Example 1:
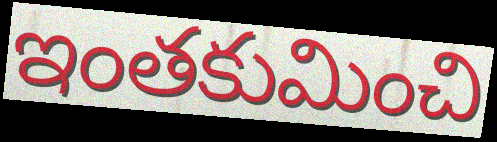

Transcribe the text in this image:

ఇంతకుమించి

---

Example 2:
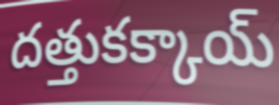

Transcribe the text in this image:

దత్తుకక్కాయ్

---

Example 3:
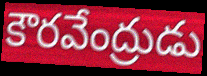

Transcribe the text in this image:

కౌరవేంద్రుడు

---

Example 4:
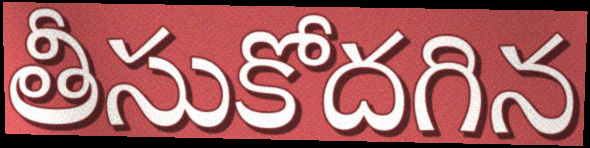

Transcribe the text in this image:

తీసుకోదగిన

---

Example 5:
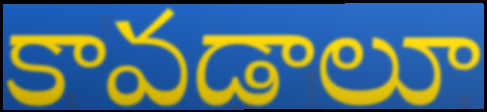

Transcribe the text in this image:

కావడాలూ